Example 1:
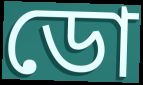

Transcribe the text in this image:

ডো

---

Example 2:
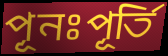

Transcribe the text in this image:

পূনঃপূৰ্তি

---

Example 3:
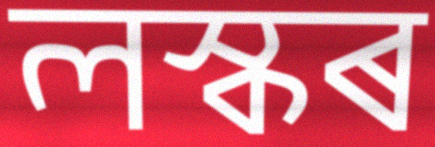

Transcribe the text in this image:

লস্কৰ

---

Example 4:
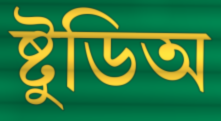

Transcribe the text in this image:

ষ্টুডিঅ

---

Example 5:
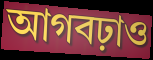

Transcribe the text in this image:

আগবঢ়াও